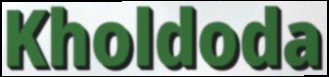
Kholdoda